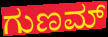
ಗುಣಮ್